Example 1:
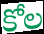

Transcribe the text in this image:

కోల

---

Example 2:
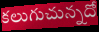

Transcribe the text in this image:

కలుగుచున్నదో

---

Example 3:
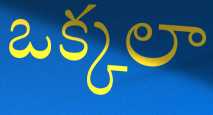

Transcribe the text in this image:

ఒక్కలా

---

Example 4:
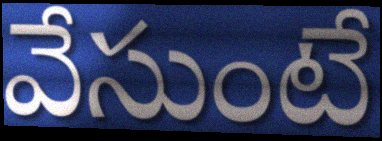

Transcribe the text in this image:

వేసుంటే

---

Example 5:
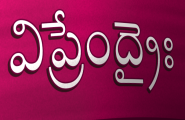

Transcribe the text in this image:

విప్రేంద్రైః